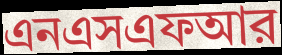
এনএসএফআর